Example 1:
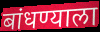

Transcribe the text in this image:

बांधण्याला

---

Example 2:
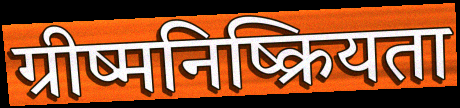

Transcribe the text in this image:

ग्रीष्मनिष्क्रियता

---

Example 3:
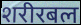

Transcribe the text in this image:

शरीरबल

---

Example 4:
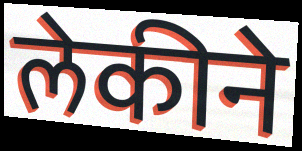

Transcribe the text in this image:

लेकीने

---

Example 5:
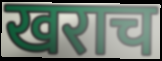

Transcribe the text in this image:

खराच